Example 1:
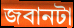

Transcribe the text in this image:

জবানটা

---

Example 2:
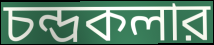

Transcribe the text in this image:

চন্দ্রকলার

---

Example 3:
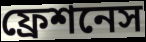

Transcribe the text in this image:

ফ্রেশনেস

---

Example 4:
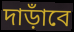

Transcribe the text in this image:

দাড়াঁবে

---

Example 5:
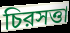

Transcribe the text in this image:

চিরসত্তা